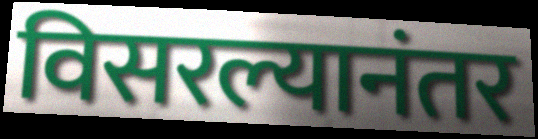
विसरल्यानंतर